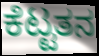
ಕೆಟ್ಟತನ